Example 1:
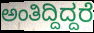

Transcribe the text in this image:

ಅಂತಿದ್ದಿದ್ದರೆ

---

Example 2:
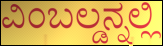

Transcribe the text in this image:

ವಿಂಬಲ್ಡನ್ನಲ್ಲಿ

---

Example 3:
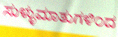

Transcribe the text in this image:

ಸುಳ್ಳುಮಾತುಗಳಿಂದ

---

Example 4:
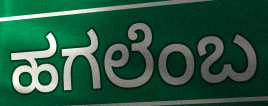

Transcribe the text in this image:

ಹಗಲೆಂಬ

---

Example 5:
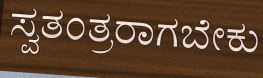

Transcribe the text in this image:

ಸ್ವತಂತ್ರರಾಗಬೇಕು